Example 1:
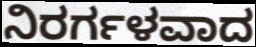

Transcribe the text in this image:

ನಿರರ್ಗಳವಾದ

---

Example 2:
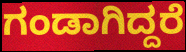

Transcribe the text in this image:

ಗಂಡಾಗಿದ್ದರೆ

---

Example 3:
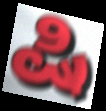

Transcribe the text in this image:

ಷಿ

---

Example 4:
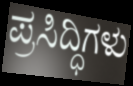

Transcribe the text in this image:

ಪ್ರಸಿದ್ಧಿಗಳು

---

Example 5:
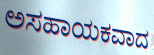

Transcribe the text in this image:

ಅಸಹಾಯಕವಾದ